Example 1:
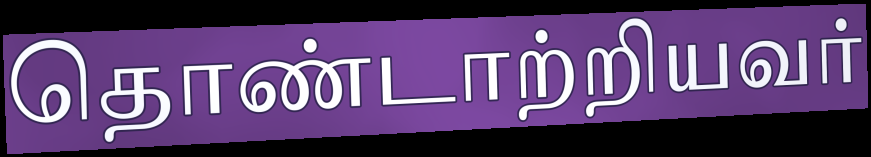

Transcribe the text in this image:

தொண்டாற்றியவர்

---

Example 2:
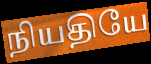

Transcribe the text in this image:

நியதியே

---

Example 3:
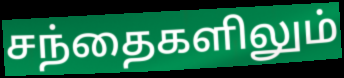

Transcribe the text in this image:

சந்தைகளிலும்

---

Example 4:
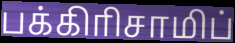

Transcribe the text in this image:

பக்கிரிசாமிப்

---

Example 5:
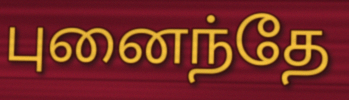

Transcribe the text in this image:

புனைந்தே